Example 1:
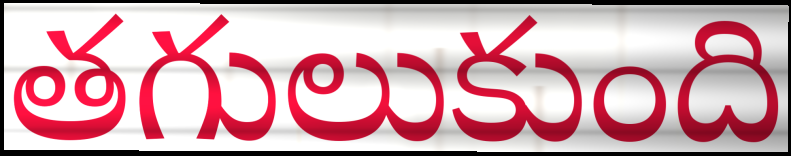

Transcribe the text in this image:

తగులుకుంది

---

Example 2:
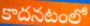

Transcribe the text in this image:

కాదనటంలో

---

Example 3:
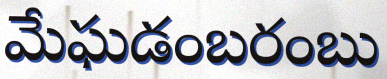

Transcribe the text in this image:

మేఘడంబరంబు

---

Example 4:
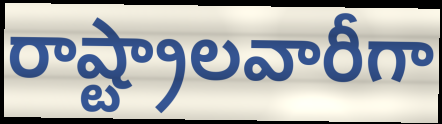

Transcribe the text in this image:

రాష్ట్రాలవారీగా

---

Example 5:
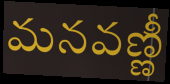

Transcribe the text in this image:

మనవణ్ణీ